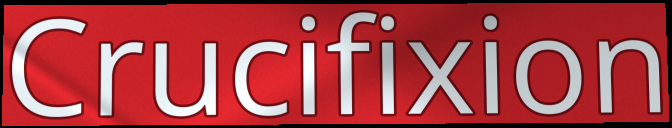
Crucifixion